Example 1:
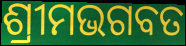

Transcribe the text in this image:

ଶ୍ରୀମଭଗବତ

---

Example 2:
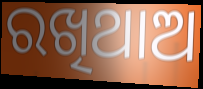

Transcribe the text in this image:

ରଖିଥାଅ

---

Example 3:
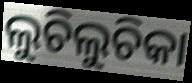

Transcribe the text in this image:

ଲୁଚିଲୁଚିକା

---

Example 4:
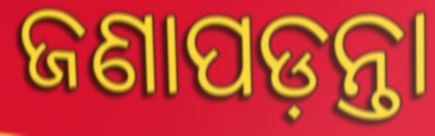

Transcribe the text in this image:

ଜଣାପଡ଼ନ୍ତା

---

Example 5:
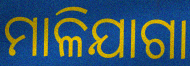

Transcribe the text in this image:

ମାଳିଯାଗା